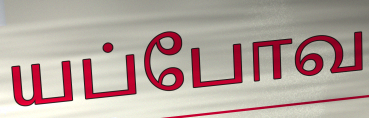
யப்போவ